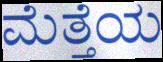
ಮೆತ್ತೆಯ